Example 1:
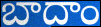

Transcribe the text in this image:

బాదాం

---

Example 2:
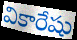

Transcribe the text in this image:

వికారేషు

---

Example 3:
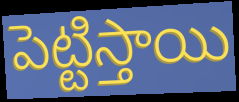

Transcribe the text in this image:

పెట్టిస్తాయి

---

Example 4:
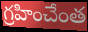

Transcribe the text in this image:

గ్రహించేంత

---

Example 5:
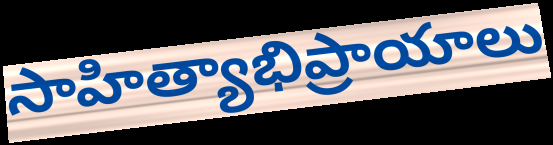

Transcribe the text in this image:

సాహిత్యాభిప్రాయాలు